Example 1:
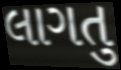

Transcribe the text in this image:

લાગતુ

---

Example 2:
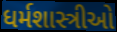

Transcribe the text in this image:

ધર્મશાસ્ત્રીઓ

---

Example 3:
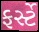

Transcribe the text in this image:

ફર્સ્ટે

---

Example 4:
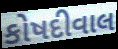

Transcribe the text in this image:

કોષદીવાલ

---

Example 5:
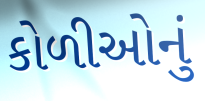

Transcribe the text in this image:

કોળીઓનું